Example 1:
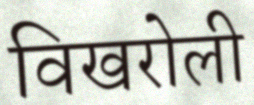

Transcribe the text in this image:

विखरोली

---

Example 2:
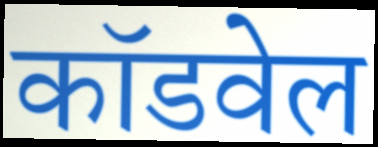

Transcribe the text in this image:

कॉडवेल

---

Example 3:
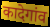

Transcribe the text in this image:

कादेगांव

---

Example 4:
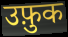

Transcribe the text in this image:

उफ़ुक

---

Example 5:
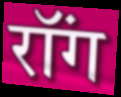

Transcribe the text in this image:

रॉंग